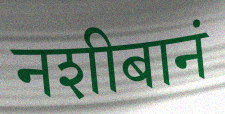
नशीबानं